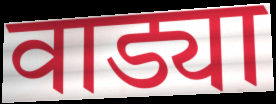
वाड्या